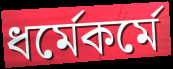
ধর্মেকর্মে